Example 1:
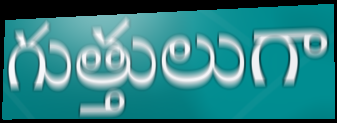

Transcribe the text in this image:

గుత్తులుగా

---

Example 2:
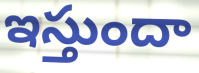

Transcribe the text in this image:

ఇస్తుందా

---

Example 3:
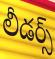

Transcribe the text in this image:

లీడర్స్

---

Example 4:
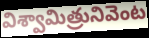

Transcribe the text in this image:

విశ్వామిత్రునివెంట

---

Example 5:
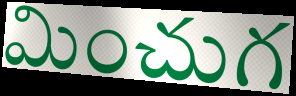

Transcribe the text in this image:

మించుగ